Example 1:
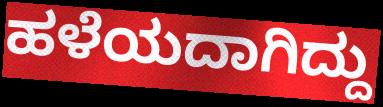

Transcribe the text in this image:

ಹಳೆಯದಾಗಿದ್ದು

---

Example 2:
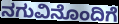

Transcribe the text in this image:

ನಗುವಿನೊಂದಿಗೆ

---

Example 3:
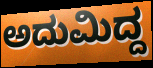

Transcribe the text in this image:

ಅದುಮಿದ್ದ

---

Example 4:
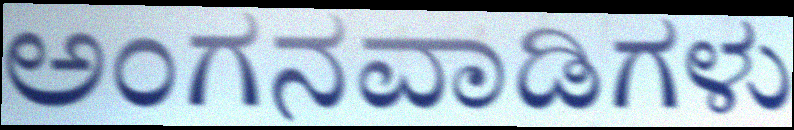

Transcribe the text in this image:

ಅಂಗನವಾಡಿಗಳು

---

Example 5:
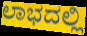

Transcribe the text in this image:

ಲಾಭದಲ್ಲಿ